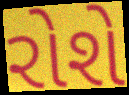
રોશે